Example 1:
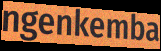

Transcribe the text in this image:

ngenkemba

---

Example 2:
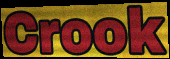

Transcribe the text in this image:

Crook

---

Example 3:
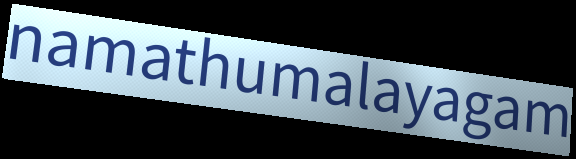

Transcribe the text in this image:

namathumalayagam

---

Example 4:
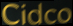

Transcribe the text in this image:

Cidco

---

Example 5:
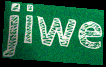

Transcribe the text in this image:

jiwe